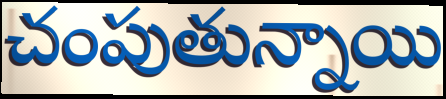
చంపుతున్నాయి